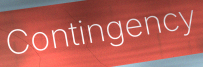
Contingency